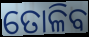
ତୋଳିବ